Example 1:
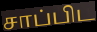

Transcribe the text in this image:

சாப்பிட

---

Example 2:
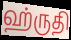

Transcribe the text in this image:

ஹ்ருதி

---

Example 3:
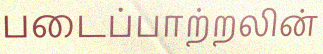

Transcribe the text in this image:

படைப்பாற்றலின்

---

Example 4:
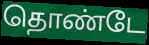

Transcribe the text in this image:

தொண்டே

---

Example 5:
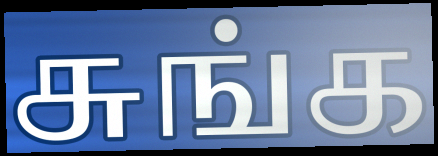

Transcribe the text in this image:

சுங்க